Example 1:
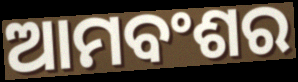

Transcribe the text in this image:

ଆମବଂଶର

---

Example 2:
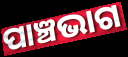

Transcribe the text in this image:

ପାଞ୍ଚଭାଗ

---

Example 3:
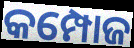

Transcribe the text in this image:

କମ୍ପୋଜ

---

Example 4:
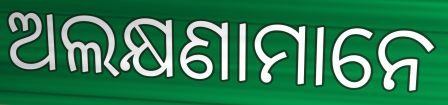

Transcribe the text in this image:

ଅଲକ୍ଷଣାମାନେ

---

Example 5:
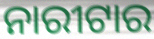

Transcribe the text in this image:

ନାରୀଟାର